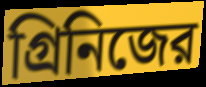
গ্রিনিজের